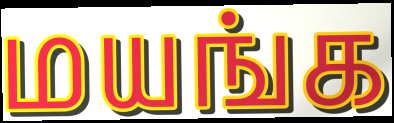
மயங்க